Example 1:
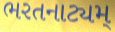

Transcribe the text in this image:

ભરતનાટ્યમ્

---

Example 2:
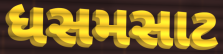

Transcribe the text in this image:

ધસમસાટ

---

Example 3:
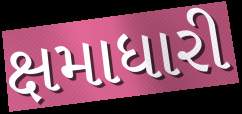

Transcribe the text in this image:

ક્ષમાધારી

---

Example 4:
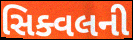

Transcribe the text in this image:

સિક્વલની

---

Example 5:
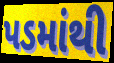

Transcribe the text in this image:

પડમાંથી